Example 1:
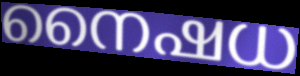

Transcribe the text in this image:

നൈഷധ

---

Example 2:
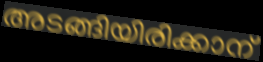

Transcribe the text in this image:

അടങ്ങിയിരിക്കാന്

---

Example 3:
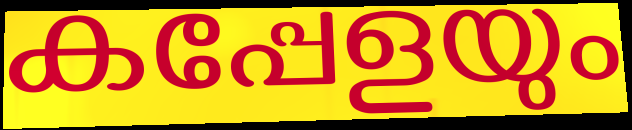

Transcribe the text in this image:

കപ്പേളയും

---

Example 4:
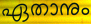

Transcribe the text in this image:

ഏതാനും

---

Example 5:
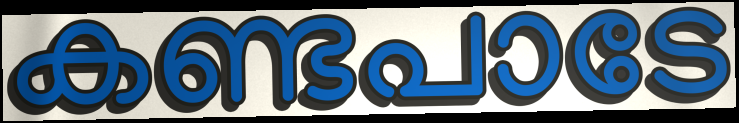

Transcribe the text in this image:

കണ്ടപാടേ